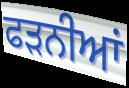
ਫੜਨੀਆਂ